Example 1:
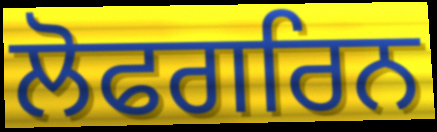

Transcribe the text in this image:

ਲੋਫਗਰਿਨ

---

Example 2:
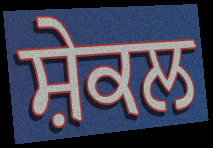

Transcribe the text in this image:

ਸ਼ੇਕਲ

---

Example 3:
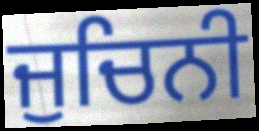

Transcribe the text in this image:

ਜੁਚਿਨੀ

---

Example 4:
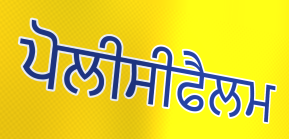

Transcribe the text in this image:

ਪੋਲੀਸੀਫੈਲਮ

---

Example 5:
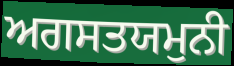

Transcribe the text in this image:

ਅਗਸਤਯਮੁਨੀ